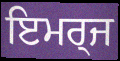
ਇਮਰ੍ਜ